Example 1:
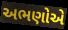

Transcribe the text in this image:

અભણોએ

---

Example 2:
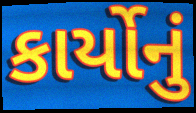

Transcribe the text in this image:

કાર્યોનું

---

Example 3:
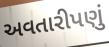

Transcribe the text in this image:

અવતારીપણું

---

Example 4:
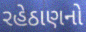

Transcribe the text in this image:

રહેઠાણનો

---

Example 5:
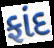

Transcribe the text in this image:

ફાંદ